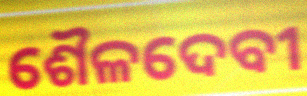
ଶୈଳଦେବୀ